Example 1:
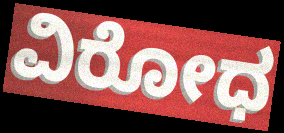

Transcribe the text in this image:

ವಿರೋಧ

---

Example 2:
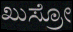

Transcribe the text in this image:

ಖುಸ್ರೋ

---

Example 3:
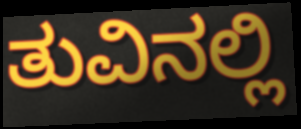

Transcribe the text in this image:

ತುವಿನಲ್ಲಿ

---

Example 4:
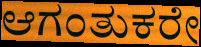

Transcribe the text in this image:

ಆಗಂತುಕರೇ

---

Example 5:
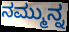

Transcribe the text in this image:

ನಮ್ಮುನ್ನ